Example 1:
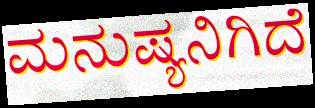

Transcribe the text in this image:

ಮನುಷ್ಯನಿಗಿದೆ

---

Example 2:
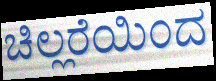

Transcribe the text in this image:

ಚಿಲ್ಲರೆಯಿಂದ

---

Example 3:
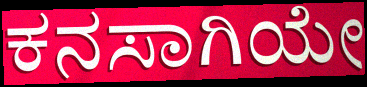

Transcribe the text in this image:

ಕನಸಾಗಿಯೇ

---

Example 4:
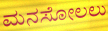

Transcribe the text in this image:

ಮನಸೋಲಲು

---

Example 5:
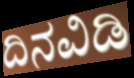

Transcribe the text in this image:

ದಿನವಿಡಿ